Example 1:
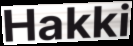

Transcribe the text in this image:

Hakki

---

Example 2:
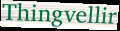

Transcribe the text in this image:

Thingvellir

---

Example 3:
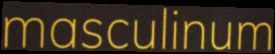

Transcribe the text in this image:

masculinum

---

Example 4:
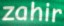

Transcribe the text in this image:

zahir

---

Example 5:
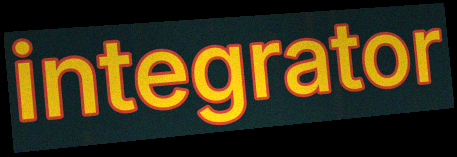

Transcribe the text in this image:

integrator